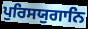
ਪੁਰਿਸਯੁਗਾਨਿ